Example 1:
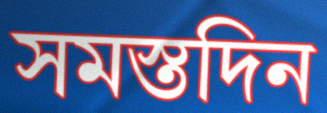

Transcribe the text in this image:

সমস্তদিন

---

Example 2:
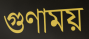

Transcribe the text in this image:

গুণাময়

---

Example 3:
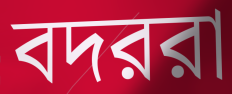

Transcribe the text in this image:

বদররা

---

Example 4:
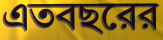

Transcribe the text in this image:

এতবছরের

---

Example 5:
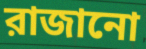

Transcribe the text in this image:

রাজানো